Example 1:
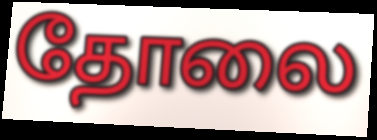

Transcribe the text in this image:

தோலை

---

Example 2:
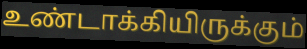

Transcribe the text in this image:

உண்டாக்கியிருக்கும்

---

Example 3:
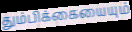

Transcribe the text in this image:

தும்பிக்கையையும்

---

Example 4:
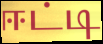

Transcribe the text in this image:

ஈட்டி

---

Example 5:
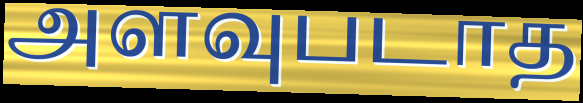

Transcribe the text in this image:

அளவுபடாத